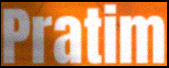
Pratim